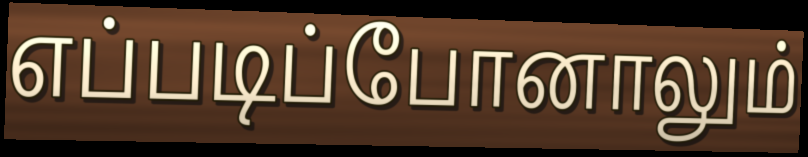
எப்படிப்போனாலும்